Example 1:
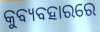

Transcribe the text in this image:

କୁବ୍ୟବହାରରେ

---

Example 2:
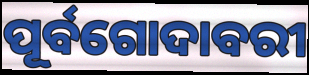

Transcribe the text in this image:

ପୂର୍ବଗୋଦାବରୀ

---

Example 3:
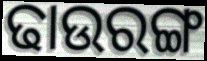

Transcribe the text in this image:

ଢାଉରଙ୍ଗ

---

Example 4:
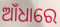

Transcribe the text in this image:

ଆଁଧାରେ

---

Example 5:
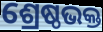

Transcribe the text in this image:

ଶ୍ରେଷ୍ଠଭକ୍ତ